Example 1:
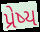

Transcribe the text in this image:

પ્રેષ્ય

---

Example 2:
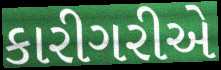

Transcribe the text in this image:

કારીગરીએ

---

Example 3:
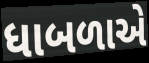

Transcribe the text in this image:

ધાબળાએ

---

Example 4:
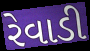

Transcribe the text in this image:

રેવાડી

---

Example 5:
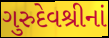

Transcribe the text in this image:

ગુરુદેવશ્રીનાં